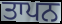
ਤਾਪਨ